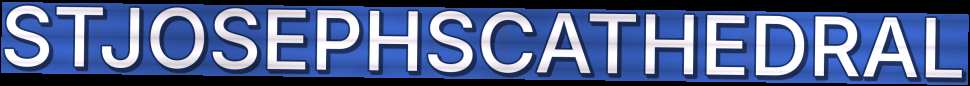
STJOSEPHSCATHEDRAL